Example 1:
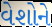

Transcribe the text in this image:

વેશોને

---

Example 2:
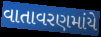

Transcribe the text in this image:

વાતાવરણમાંયે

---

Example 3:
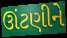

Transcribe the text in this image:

ઊંટણીને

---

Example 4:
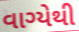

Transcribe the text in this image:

વાગ્યેથી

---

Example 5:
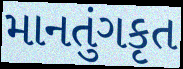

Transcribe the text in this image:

માનતુંગકૃત